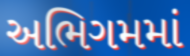
અભિગમમાં